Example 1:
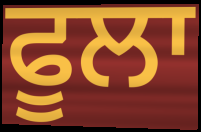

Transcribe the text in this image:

ਫੂਲਾ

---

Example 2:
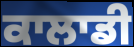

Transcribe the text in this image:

ਕਾਲਾਡੀ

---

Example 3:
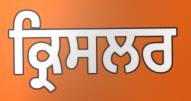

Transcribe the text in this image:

ਕ੍ਰਿਸਲਰ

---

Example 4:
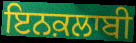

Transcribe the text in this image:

ਇਨਕ਼ਲਾਬੀ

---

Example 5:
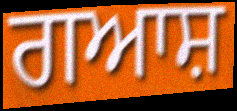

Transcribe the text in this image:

ਗਆਸ਼